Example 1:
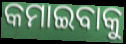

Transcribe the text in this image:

କମାଇବାକୁ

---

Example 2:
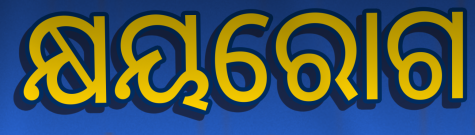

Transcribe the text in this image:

କ୍ଷୟରୋଗ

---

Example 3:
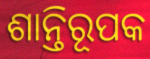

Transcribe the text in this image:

ଶାନ୍ତିରୂପକ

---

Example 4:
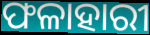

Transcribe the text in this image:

ଫଳାହାରୀ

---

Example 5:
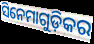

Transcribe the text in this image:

ସିନେମାଗୁଡ଼ିକର